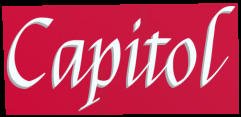
Capitol